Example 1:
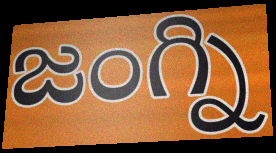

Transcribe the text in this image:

జంగ్ని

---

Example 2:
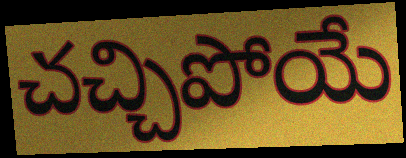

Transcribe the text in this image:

చచ్చిపోయే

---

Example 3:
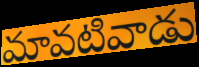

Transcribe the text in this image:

మావటివాడు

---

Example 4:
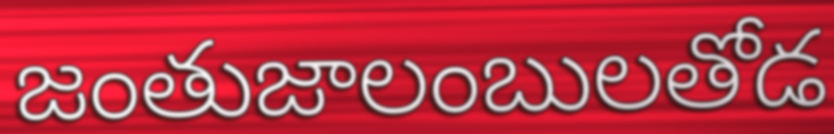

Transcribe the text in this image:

జంతుజాలంబులతోడ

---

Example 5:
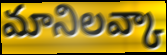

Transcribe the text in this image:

మానిలవ్కా